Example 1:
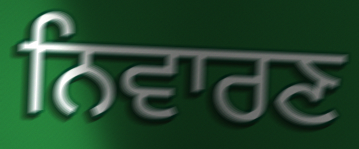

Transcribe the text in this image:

ਨਿਵਾਰਣ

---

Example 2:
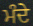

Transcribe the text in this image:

ਮੰਦੇ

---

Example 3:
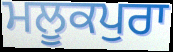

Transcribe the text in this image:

ਮਲੂਕਪੁਰਾ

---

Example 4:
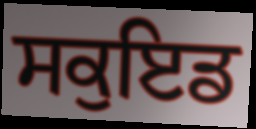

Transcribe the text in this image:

ਸਕੁਇਡ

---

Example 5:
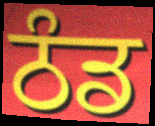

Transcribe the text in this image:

ਠੰਡ